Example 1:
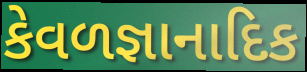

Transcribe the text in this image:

કેવળજ્ઞાનાદિક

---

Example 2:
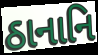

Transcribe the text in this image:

ઠાનાનિ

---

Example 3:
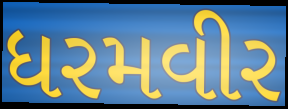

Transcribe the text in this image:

ધરમવીર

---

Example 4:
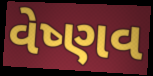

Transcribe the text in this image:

વેષ્ણવ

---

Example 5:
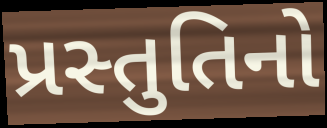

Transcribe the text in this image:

પ્રસ્તુતિનો